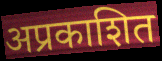
अप्रकाशित